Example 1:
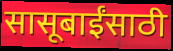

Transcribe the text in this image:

सासूबाईंसाठी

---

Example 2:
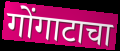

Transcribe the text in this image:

गोंगाटाचा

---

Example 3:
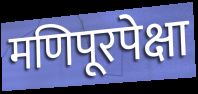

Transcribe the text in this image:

मणिपूरपेक्षा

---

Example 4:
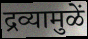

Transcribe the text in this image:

द्रव्यामुळें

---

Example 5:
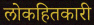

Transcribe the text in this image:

लोकहितकारी